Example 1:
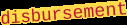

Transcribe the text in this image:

disbursement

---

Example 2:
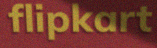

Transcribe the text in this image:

flipkart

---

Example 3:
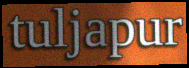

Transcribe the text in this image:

tuljapur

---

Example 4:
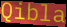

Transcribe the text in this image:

Qibla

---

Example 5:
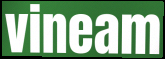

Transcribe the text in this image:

vineam